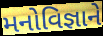
મનોવિજ્ઞાને